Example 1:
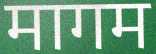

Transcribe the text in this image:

मागम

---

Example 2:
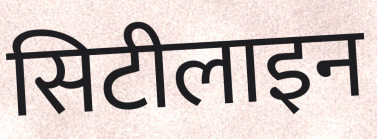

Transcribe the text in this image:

सिटीलाइन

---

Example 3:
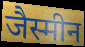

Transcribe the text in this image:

जैस्‍मीन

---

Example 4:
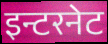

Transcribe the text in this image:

इन्‍टरनेट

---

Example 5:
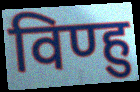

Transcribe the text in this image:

विण्हु